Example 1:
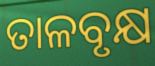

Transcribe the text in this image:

ତାଳବୃକ୍ଷ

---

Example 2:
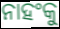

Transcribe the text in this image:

ନାହଂକୁ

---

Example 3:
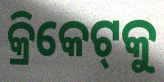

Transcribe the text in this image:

କ୍ରିକେଟ୍‌କୁ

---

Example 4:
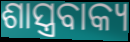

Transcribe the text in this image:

ଶାସ୍ତ୍ରବାକ୍ୟ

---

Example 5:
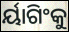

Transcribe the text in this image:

ର୍ୟାଗିଂକୁ